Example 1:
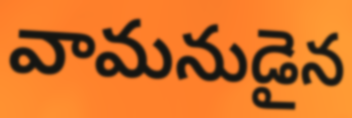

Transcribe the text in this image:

వామనుడైన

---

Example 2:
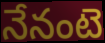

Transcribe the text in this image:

నేనంటె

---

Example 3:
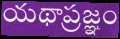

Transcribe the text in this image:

యథాప్రజ్ఞం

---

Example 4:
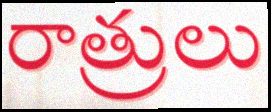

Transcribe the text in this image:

రాత్రులు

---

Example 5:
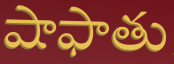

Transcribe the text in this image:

షాఫాతు